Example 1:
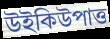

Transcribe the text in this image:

উইকিউপাত্ত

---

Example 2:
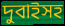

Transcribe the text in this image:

দুবাইসহ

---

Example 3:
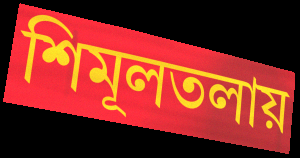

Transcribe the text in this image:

শিমূলতলায়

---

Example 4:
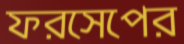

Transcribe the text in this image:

ফরসেপের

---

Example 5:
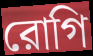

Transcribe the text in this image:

রোগি